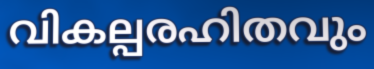
വികല്പരഹിതവും